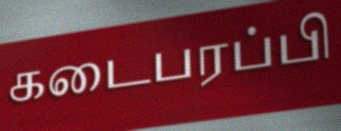
கடைபரப்பி